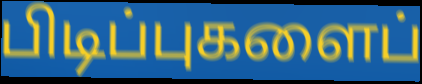
பிடிப்புகளைப்